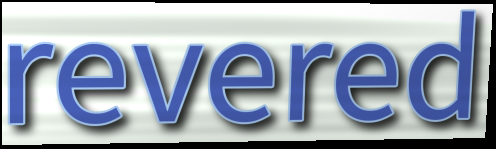
revered